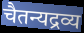
चैतन्यद्रव्य